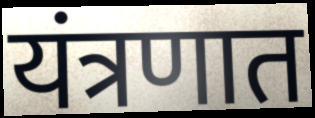
यंत्रणात